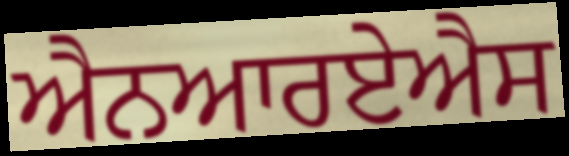
ਐਨਆਰਏਐਸ